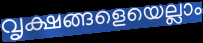
വൃക്ഷങ്ങളെയെല്ലാം